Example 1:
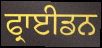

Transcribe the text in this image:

ਫ੍ਰਾਈਡਨ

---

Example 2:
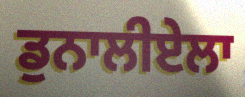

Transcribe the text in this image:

ਡੁਨਾਲੀਏਲਾ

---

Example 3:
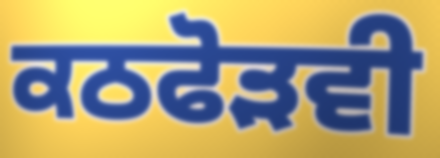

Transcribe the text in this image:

ਕਠਫੋੜਵੀ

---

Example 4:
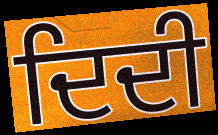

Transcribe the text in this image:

ਦਿਦੀ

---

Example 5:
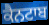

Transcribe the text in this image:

ਕੈਨਟਾਬ